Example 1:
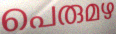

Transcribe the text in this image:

പെരുമഴ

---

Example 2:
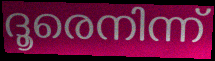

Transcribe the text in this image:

ദൂരെനിന്ന്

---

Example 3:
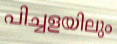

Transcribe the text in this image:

പിച്ചളയിലും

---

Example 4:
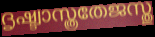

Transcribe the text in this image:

ദൃഷ്ട്വാസ്ത്രതേജസ്തു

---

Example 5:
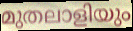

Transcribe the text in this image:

മുതലാളിയും